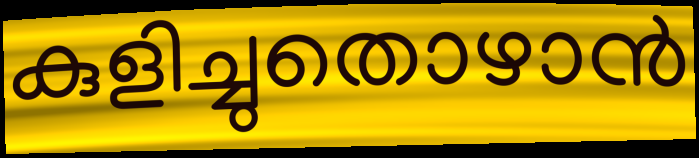
കുളിച്ചുതൊഴാൻ